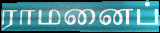
ராமனைப்